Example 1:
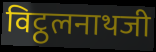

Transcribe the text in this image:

विट्ठलनाथजी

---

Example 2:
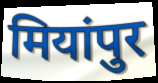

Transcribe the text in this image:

मियांपुर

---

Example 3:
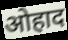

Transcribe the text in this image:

ओहाद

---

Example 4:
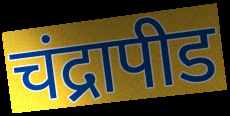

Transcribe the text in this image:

चंद्रापीड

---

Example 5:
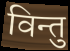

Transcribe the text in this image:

विन्तु